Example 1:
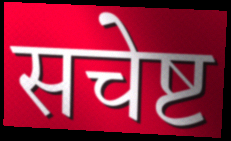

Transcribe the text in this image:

सचेष्ट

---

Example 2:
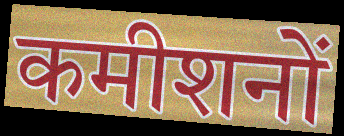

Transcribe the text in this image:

कमीशनों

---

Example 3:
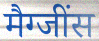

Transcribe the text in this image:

मैग्जींस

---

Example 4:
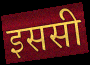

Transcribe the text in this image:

इससी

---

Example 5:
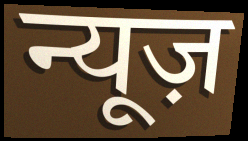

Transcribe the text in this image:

न्‍यूज़